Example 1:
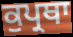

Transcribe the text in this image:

ਕੁਪ੍ਰਥਾ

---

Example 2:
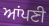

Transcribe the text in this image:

ਆਂਪਣੀ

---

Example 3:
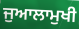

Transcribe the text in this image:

ਜੁਆਲਾਮੁਖੀ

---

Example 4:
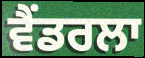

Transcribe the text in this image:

ਵੈਂਡਰਲਾ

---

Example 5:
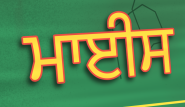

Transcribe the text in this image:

ਮਾਈਸ